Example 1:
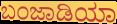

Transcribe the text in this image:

ಬಂಜಾಡಿಯಾ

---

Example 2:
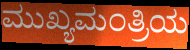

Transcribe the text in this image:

ಮುಖ್ಯಮಂತ್ರಿಯ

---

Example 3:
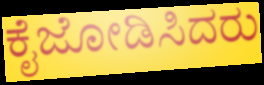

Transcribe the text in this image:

ಕೈಜೋಡಿಸಿದರು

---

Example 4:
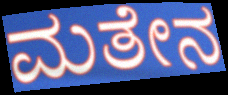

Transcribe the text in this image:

ಮತೇನ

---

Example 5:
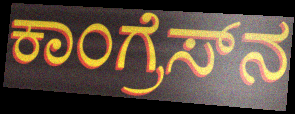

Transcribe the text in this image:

ಕಾಂಗ್ರೆಸ್‍ನ